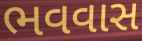
ભવવાસ